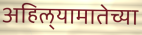
अहिल्यामातेच्या